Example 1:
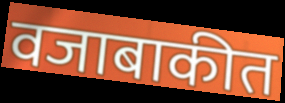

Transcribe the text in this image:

वजाबाकीत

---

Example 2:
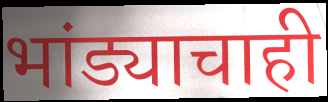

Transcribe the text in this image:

भांड्याचाही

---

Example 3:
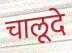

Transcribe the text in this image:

चालूदे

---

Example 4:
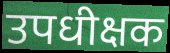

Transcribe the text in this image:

उपधीक्षक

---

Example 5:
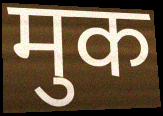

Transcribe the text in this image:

मुक